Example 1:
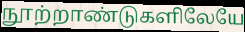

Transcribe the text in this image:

நூற்றாண்டுகளிலேயே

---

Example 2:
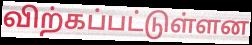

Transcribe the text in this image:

விற்கப்பட்டுள்ளன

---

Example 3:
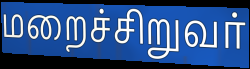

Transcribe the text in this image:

மறைச்சிறுவர்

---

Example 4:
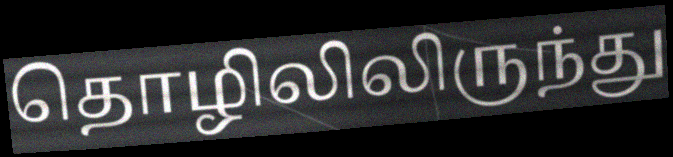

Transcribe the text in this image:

தொழிலிலிருந்து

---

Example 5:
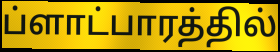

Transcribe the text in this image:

ப்ளாட்பாரத்தில்